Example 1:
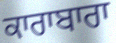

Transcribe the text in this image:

ਕਾਰਾਬਾਰਾ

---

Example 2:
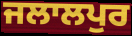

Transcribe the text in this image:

ਜਲਾਲਪੁਰ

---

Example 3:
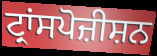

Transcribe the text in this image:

ਟ੍ਰਾਂਸਪੋਜ਼ੀਸ਼ਨ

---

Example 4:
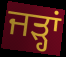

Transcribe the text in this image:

ਜੜ੍ਹਾਂ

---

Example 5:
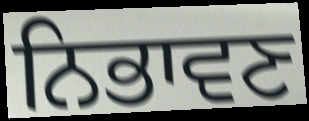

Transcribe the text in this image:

ਨਿਭਾਵਣ